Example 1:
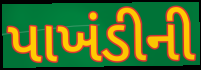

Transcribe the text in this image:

પાખંડીની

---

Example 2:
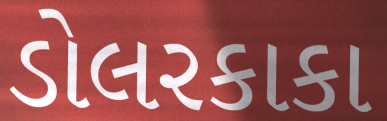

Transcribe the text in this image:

ડોલરકાકા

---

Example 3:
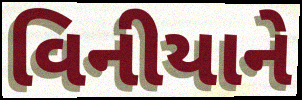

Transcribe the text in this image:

વિનીયાને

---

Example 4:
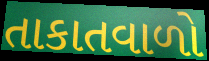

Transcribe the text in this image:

તાકાતવાળો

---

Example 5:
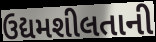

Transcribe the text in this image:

ઉદ્યમશીલતાની